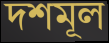
দশমূল